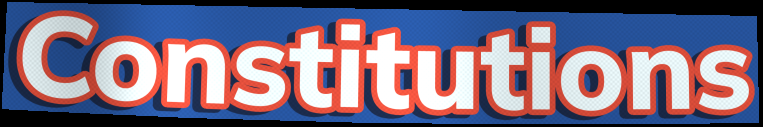
Constitutions